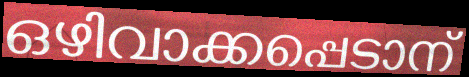
ഒഴിവാക്കപ്പെടാന്